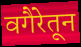
वगैरेतून